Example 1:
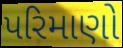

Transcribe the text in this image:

પરિમાણો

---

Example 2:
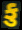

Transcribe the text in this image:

કુ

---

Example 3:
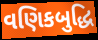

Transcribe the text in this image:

વણિકબુદ્ધિ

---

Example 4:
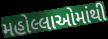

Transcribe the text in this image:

મહોલ્લાઓમાંથી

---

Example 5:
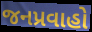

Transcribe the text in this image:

જનપ્રવાહો